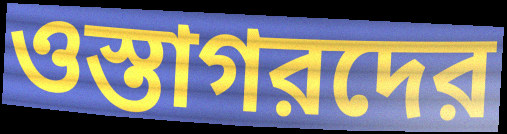
ওস্তাগরদের